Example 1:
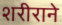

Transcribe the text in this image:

शरीराने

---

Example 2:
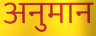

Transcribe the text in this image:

अनुमान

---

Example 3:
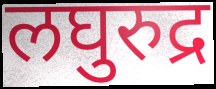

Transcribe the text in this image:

लघुरुद्र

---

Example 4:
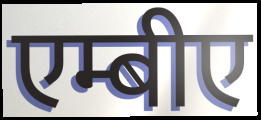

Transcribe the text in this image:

एम्बीए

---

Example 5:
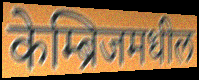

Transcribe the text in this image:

केम्ब्रिजमधील